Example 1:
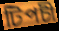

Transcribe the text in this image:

টিপচী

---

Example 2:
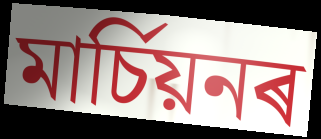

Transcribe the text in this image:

মাৰ্চিয়নৰ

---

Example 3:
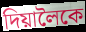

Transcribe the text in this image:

দিয়ালৈকে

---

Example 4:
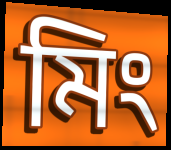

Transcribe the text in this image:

মিং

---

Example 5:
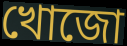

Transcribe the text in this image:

খোজো